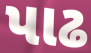
પાઢ